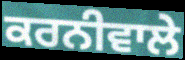
ਕਰਨੀਵਾਲੇ